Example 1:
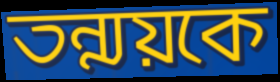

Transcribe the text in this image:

তন্ময়কে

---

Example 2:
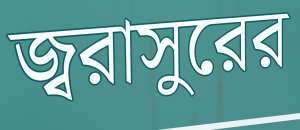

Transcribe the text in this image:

জ্বরাসুরের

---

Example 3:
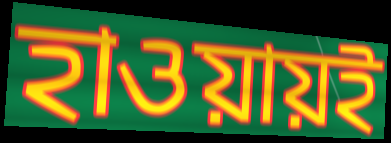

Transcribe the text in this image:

হাওয়ায়ই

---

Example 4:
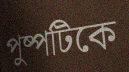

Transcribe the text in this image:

পুষ্পটিকে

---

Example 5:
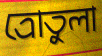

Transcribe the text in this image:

ত্রোতুলা